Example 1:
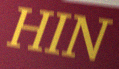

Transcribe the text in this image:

HIN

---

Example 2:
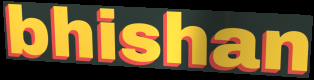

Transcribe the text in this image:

bhishan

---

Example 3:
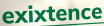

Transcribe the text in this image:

exixtence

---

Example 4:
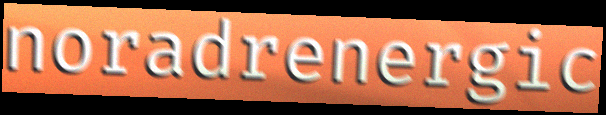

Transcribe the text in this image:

noradrenergic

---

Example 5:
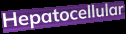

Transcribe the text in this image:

Hepatocellular